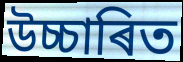
উচ্চাৰিত